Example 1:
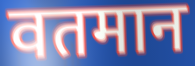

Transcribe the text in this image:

वतमान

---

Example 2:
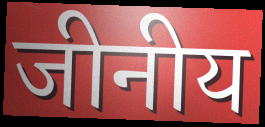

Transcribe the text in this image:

जीनीय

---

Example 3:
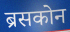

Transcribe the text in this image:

ब्रसकोन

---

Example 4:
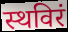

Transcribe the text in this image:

स्थविरं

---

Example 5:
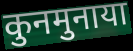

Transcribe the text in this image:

कुनमुनाया